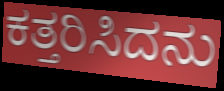
ಕತ್ತರಿಸಿದನು